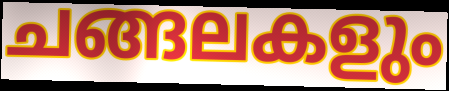
ചങ്ങലകളും